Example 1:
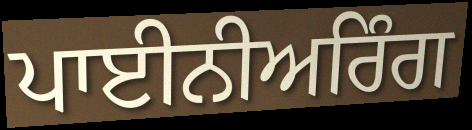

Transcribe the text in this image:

ਪਾਈਨੀਅਰਿੰਗ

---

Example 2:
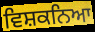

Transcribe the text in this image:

ਵਿਸ਼ਕਨਿਆ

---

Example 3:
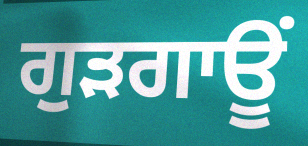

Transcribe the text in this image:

ਗੁੜਗਾਊਂ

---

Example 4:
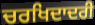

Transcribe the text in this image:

ਚਰਖਿਦਾਦਰੀ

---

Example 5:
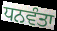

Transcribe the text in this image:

ਧਨਵੰਤਾ